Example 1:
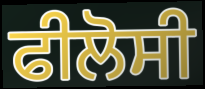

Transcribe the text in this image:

ਫੀਲੋਸੀ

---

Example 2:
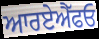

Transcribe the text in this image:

ਆਰਏਐੱਫਓ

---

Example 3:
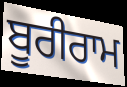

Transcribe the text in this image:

ਬੂਰੀਰਾਮ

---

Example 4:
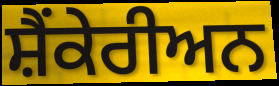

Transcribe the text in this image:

ਸ਼ੈਂਕੇਰੀਅਨ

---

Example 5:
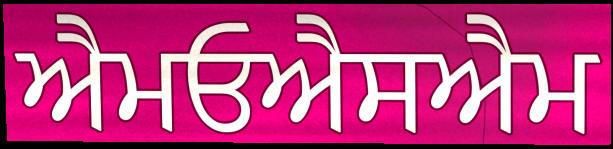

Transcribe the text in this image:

ਐਮਓਐਸਐਮ